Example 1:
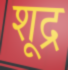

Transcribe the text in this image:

शूद्र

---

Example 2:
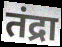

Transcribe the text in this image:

तंद्रा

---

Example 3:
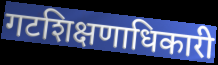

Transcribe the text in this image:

गटशिक्षणाधिकारी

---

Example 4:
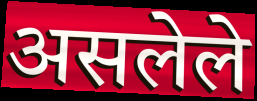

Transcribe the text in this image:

असलेले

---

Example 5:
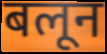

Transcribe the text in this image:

बलून